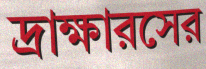
দ্রাক্ষারসের